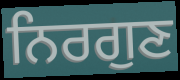
ਨਿਰਗੁਣ